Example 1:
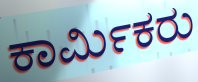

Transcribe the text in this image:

ಕಾರ್ಮಿಕರು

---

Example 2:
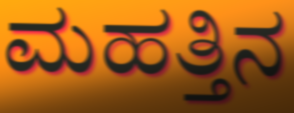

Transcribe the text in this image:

ಮಹತ್ತಿನ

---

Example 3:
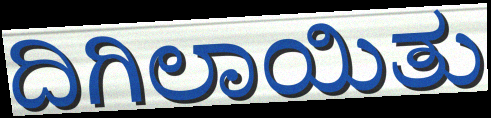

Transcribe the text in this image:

ದಿಗಿಲಾಯಿತು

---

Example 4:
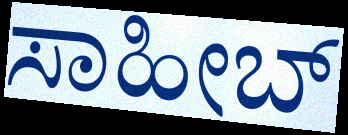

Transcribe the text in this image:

ಸಾಹೀಬ್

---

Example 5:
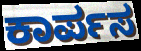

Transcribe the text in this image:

ಕಾರ್ಪಸ